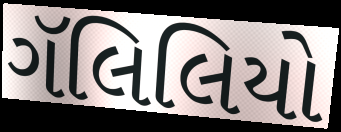
ગૅલિલિયો